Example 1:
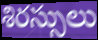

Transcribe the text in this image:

శిరస్సులు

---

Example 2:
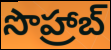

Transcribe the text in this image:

సొహ్రాబ్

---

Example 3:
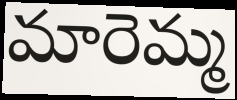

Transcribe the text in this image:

మారెమ్మ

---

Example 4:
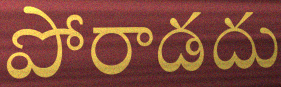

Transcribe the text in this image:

పోరాడదు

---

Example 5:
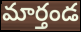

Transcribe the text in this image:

మార్తండ